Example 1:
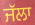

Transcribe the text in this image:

ਜੱਲਾ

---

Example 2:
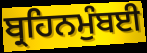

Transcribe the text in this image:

ਬ੍ਰਹਿਨਮੁੰਬਈ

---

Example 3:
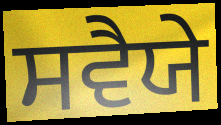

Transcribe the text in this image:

ਸਵੈਯੇ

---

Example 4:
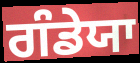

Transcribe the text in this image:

ਗੰਡੇਯਾ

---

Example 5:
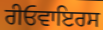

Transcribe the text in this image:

ਰੀਓਵਾਇਰਸ